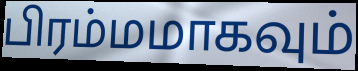
பிரம்மமாகவும்